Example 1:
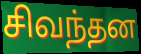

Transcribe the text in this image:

சிவந்தன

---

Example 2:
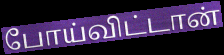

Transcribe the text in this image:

போய்விட்டான்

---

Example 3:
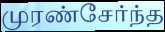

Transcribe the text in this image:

முரண்சேர்ந்த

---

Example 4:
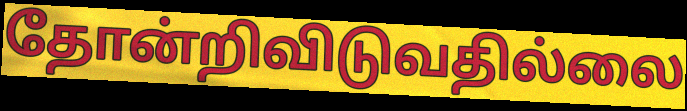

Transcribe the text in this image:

தோன்றிவிடுவதில்லை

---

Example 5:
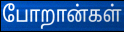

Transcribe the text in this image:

போறான்கள்